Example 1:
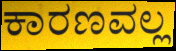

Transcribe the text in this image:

ಕಾರಣವಲ್ಲ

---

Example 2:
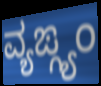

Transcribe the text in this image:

ವ್ಯಙ್ಗ್ಯಂ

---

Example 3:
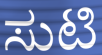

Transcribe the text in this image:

ಸುಟಿ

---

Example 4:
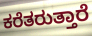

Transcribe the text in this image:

ಕರೆತರುತ್ತಾರೆ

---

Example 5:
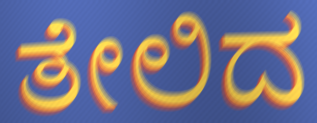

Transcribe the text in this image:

ತೇಲಿದ